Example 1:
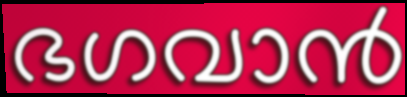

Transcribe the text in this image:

ഭഗവാൻ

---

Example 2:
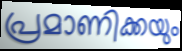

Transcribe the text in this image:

പ്രമാണിക്കയും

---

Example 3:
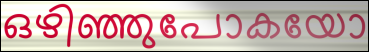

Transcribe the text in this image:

ഒഴിഞ്ഞുപോകയോ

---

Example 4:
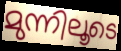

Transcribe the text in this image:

മുന്നിലൂടെ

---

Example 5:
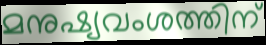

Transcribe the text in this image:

മനുഷ്യവംശത്തിന്